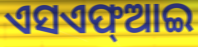
ଏସଏଫ୍ଆଇ